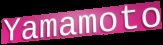
Yamamoto